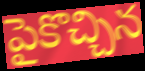
పైకొచ్చిన